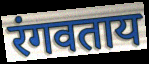
रंगवताय